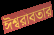
ঈশ্বরাবতার